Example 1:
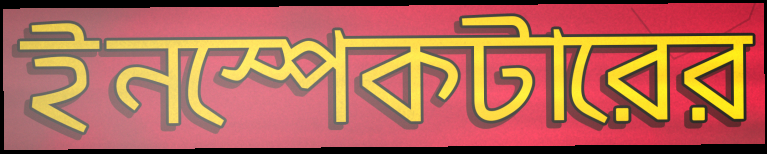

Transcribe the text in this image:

ইনস্পেকটারের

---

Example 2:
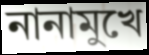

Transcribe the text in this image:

নানামুখে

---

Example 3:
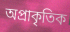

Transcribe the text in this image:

অপ্রাকৃতিক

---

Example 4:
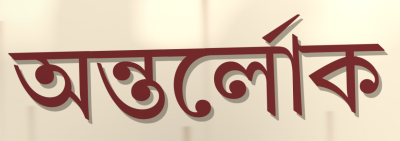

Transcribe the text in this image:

অন্তর্লোক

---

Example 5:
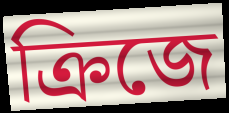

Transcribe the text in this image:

ক্রিজে